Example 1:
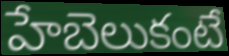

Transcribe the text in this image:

హేబెలుకంటే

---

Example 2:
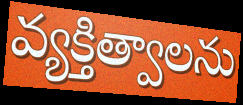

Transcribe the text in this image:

వ్యక్తిత్వాలను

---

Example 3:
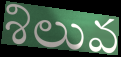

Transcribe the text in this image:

శిలువ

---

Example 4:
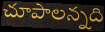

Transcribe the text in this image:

చూపాలన్నది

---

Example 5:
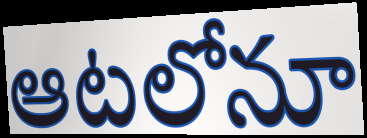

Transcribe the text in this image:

ఆటలోనూ